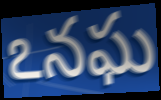
ఽనఘ